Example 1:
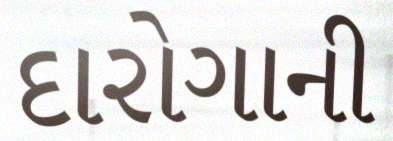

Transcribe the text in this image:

દારોગાની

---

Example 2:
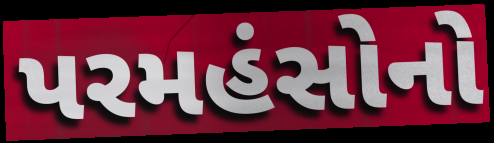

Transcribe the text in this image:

પરમહંસોનો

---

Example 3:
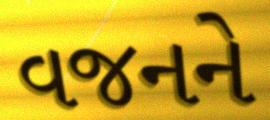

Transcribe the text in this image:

વજનને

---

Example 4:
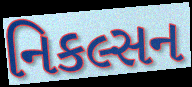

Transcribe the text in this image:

નિકલ્સન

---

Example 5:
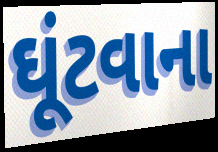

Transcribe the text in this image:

ઘૂંટવાના